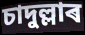
চাদুল্লাৰ